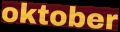
oktober